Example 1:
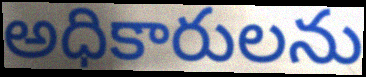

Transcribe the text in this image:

అధికారులను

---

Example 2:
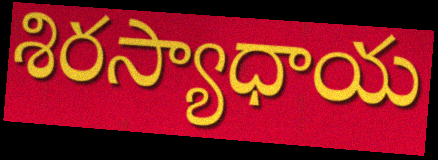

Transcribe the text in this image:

శిరస్యాధాయ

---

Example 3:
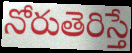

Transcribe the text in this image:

నోరుతెరిస్తే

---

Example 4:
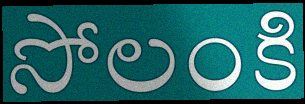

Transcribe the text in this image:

సోలంకి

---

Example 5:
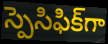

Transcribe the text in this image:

స్పెసిఫిక్‌గా